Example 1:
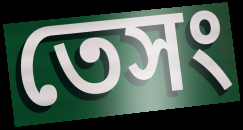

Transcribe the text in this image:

তেসং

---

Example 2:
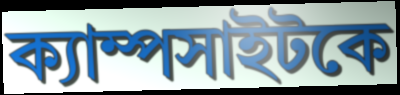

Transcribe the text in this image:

ক্যাম্পসাইটকে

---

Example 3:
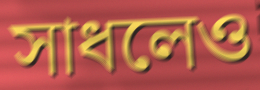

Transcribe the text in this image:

সাধলেও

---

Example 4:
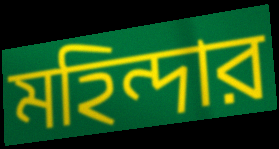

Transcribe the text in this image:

মহিন্দার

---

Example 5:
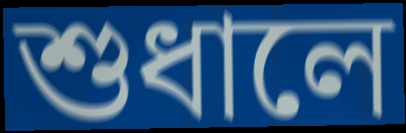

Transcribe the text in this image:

শুধালে